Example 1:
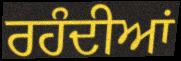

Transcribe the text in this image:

ਰਹੰਦੀਆਂ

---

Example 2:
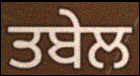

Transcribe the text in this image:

ਤਬੇਲ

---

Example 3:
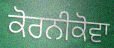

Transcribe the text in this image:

ਕੋਰਨੀਕੋਵਾ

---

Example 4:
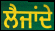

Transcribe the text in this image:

ਲੈਜਾਂਦੇ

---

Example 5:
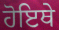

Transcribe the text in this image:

ਹੋਇਥੇ